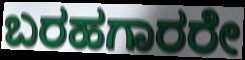
ಬರಹಗಾರರೇ